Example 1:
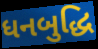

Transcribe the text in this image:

ધનબુદ્ધિ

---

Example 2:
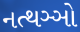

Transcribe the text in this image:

નત્થઞ્ઞો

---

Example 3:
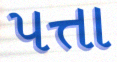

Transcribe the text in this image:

પત્તા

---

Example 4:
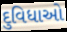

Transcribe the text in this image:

દુવિધાઓ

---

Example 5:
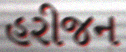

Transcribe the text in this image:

હરીજન